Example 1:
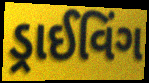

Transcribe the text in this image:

ડ્રાઈવિંગ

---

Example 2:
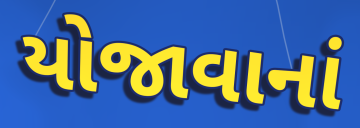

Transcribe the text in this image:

યોજાવાનાં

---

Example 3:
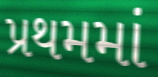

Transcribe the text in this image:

પ્રથમમાં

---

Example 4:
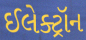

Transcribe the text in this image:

ઈલેક્ટ્રૉન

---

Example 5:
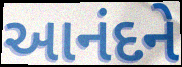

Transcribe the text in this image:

આનંદને